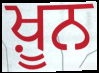
ਖ਼ੂਨ